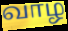
வாழ